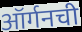
ऑर्गनची